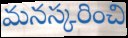
మనస్కరించి